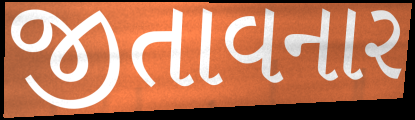
જીતાવનાર